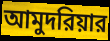
আমুদরিয়ার